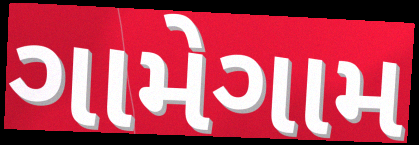
ગામેગામ